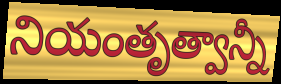
నియంతృత్వాన్నీ